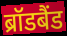
ब्रॉडबैंड